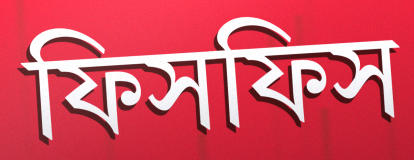
ফিসফিস